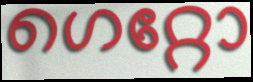
ഗെറ്റോ